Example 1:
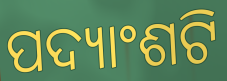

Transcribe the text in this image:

ପଦ୍ୟାଂଶଟି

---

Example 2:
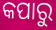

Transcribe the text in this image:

କପାରୁ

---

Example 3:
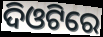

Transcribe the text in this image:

ଦିଓଟିରେ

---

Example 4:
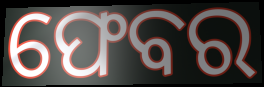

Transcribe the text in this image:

ଫେବର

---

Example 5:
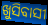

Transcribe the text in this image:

ଖୁସିବାସୀ